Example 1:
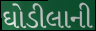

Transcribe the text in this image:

ઘોડીલાની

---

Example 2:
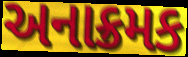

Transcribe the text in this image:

અનાક્રમક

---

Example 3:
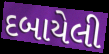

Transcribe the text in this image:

દબાયેલી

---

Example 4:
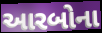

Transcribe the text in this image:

આરબોના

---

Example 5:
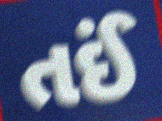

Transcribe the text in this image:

તઈં